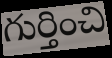
గుర్తించి